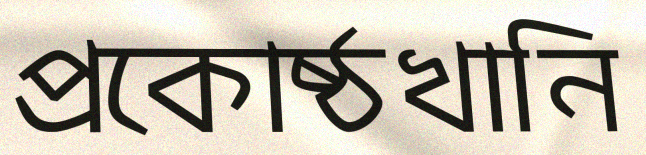
প্রকোষ্ঠখানি